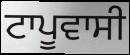
ਟਾਪੂਵਾਸੀ